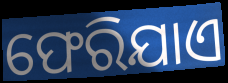
ଫେରିଯାଏ